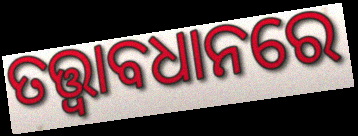
ତତ୍ତ୍ଵାବଧାନରେ